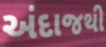
અંદાજથી